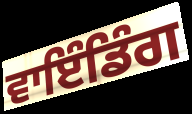
ਵਾਇੰਡਿੰਗ